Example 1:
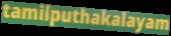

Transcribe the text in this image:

tamilputhakalayam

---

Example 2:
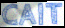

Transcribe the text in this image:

CAIT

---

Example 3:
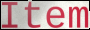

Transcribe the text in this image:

Item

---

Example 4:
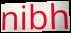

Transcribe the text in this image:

nibh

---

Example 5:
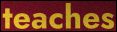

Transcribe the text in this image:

teaches